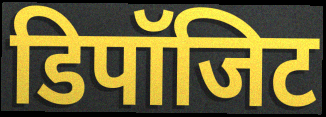
डिपॉजिट